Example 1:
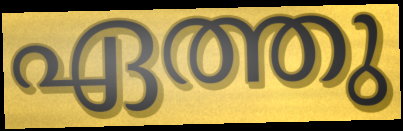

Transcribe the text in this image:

ഏത്തു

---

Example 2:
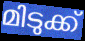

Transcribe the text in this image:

മിടുക്ക്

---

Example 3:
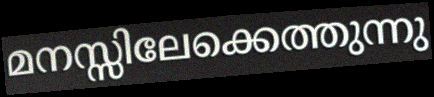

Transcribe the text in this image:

മനസ്സിലേക്കെത്തുന്നു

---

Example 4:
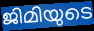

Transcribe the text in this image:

ജിമിയുടെ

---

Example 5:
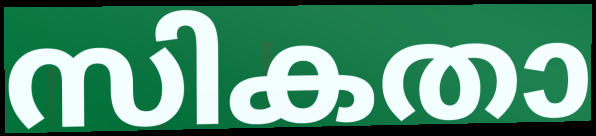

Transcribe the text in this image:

സികതാ